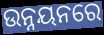
ଉନ୍ନୟନରେ